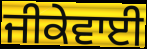
ਜੀਕੇਵਾਈ